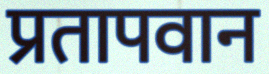
प्रतापवान